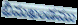
భీమఖండము